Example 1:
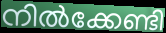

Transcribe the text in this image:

നിൽക്കേണ്ടി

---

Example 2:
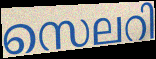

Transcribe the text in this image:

സെലറി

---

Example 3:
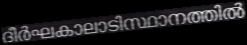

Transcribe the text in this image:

ദീർഘകാലാടിസ്ഥാനത്തിൽ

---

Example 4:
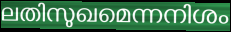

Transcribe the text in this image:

ലതിസുഖമെന്നനിശം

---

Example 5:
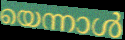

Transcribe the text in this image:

യെന്നാൾ